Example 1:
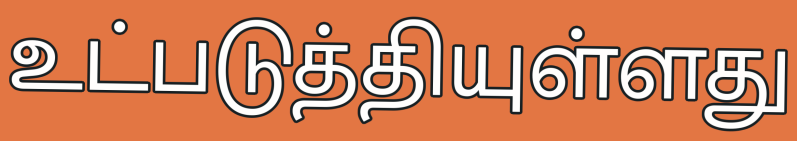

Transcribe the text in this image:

உட்படுத்தியுள்ளது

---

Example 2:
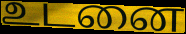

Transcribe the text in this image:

உடனை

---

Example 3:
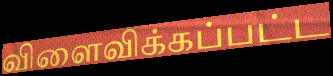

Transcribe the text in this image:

விளைவிக்கப்பட்ட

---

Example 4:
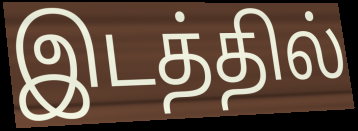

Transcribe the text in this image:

இடத்தில்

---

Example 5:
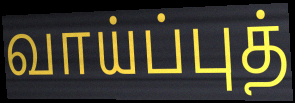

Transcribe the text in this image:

வாய்ப்புத்